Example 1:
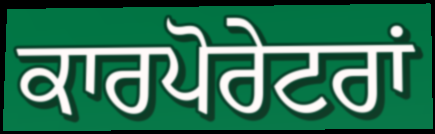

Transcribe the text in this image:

ਕਾਰਪੋਰੇਟਰਾਂ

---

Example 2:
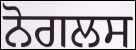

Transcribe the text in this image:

ਨੋਗਲਸ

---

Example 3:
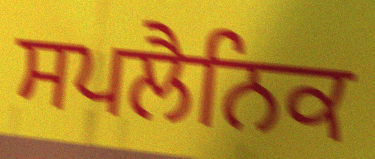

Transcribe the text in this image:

ਸਪਲੈਨਿਕ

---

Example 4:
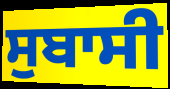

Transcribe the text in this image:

ਸੁਬਾਸੀ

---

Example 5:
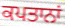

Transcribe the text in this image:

ਕਪਤਾਨਾਂ